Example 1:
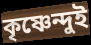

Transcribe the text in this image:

কৃষ্ণেন্দুই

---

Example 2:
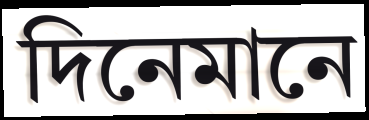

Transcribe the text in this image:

দিনেমানে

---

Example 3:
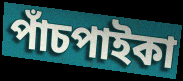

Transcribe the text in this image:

পাঁচপাইকা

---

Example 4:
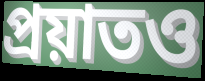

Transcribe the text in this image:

প্রয়াতও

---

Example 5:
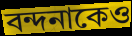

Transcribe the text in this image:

বন্দনাকেও